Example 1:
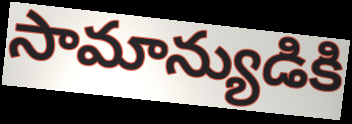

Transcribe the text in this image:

సామాన్యుడికి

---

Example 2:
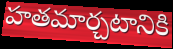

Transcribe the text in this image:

హతమార్చటానికి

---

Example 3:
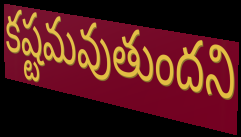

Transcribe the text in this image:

కష్టమవుతుందని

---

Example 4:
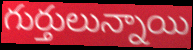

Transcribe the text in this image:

గుర్తులున్నాయి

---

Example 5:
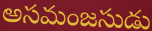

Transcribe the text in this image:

అసమంజసుడు